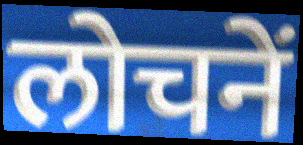
लोचनें